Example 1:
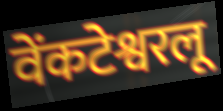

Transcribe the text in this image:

वेंकटेश्वरलू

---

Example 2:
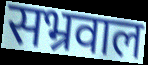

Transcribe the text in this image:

सभ्रवाल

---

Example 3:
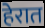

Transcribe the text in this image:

हेरात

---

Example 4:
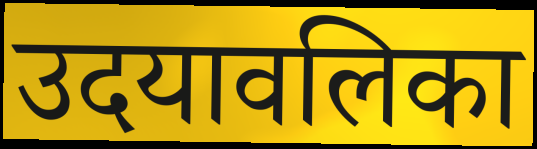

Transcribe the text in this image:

उदयावलिका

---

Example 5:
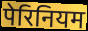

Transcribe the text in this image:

पेरिनियम